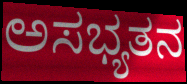
ಅಸಭ್ಯತನ